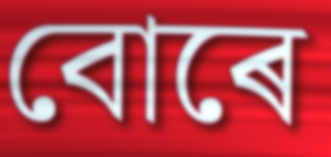
বোৰে